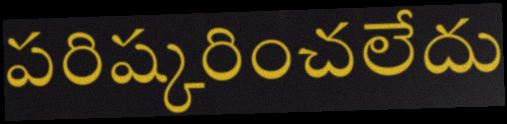
పరిష్కరించలేదు